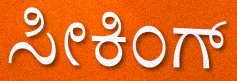
ಸೀಕಿಂಗ್